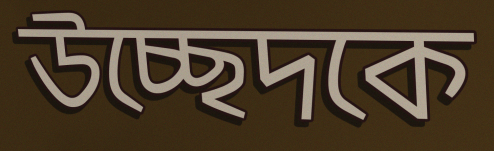
উচ্ছেদকে